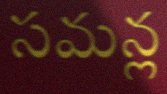
సమన్ల